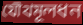
যৌথমূলধন